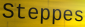
Steppes